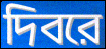
দিবরে